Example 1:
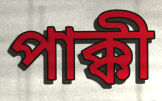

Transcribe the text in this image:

পাক্কী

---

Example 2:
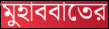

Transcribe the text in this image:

মুহাববাতের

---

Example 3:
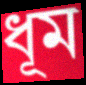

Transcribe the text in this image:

ধূম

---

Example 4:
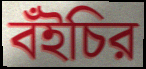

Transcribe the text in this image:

বঁইচির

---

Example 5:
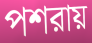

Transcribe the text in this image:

পশরায়